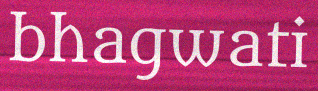
bhagwati